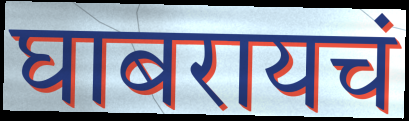
घाबरायचं